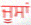
ਜੂਸਾਂ